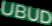
UBUD